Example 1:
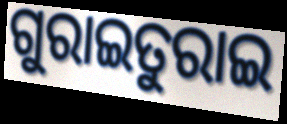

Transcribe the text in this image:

ଗୁରାଇତୁରାଇ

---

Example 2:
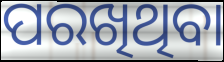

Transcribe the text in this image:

ପରଖିଥିବା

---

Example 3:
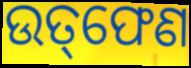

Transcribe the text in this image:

ଉତ୍‌ଫେଣ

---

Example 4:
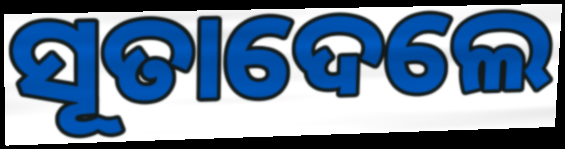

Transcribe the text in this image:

ସୂତାଦେଲେ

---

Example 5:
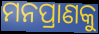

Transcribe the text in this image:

ମନପ୍ରାଣକୁ